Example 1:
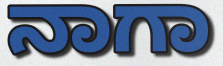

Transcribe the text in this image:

ನಾಗಾ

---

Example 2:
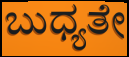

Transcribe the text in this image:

ಬುಧ್ಯತೇ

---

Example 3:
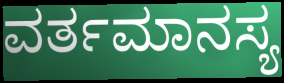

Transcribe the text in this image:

ವರ್ತಮಾನಸ್ಯ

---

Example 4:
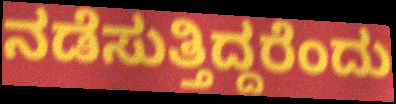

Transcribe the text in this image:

ನಡೆಸುತ್ತಿದ್ದರೆಂದು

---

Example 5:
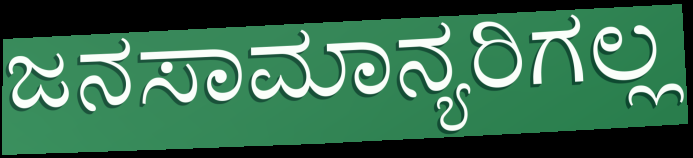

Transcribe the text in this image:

ಜನಸಾಮಾನ್ಯರಿಗಲ್ಲ